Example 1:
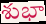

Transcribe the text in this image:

శుభా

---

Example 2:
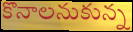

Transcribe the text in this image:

కొనాలనుకున్న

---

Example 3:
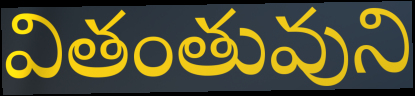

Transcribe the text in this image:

వితంతువుని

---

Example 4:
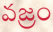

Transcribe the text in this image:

వజ్రం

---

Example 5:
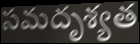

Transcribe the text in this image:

సమదృశ్యత